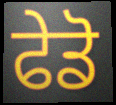
ਫੇਡੋ